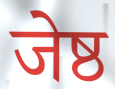
जेष्ठ